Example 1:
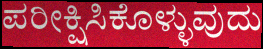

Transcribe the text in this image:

ಪರೀಕ್ಷಿಸಿಕೊಳ್ಳುವುದು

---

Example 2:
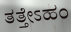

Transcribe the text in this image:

ತತ್ತೇಽಹಂ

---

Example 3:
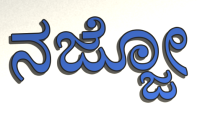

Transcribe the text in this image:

ನಜ್ಜೋ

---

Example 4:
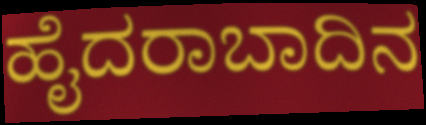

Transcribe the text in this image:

ಹೈದರಾಬಾದಿನ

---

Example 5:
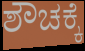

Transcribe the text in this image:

ಶೌಚಕ್ಕೆ